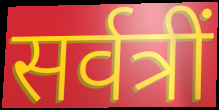
सर्वत्रीं